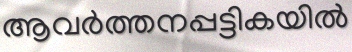
ആവർത്തനപ്പട്ടികയിൽ